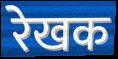
रेखक